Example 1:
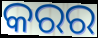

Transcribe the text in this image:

କରର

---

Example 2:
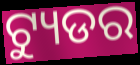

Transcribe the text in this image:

ଟ୍ୟୁଡର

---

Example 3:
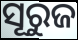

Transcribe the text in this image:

ସୂରୁଜ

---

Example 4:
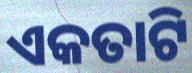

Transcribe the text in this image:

ଏକତାଟି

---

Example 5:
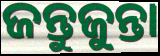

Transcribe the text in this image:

ଜନ୍ତୁଜୁନ୍ତା